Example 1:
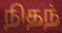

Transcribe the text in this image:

நிதந்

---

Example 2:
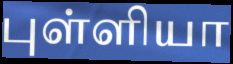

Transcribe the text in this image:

புள்ளியா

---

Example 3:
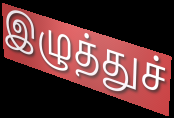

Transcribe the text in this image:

இழுத்துச்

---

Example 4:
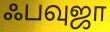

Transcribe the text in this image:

ஃபவுஜா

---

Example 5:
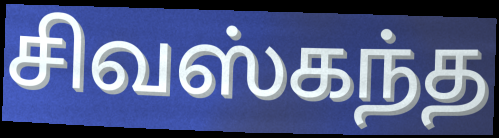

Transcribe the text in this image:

சிவஸ்கந்த